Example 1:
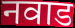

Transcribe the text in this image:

नवाड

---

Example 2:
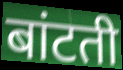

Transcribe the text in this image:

बांटती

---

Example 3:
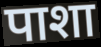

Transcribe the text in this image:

पाशा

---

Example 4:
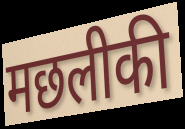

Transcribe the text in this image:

मछलीकी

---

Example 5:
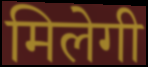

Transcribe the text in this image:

मिलेगी